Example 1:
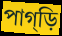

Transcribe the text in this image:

পাগ্ড়ি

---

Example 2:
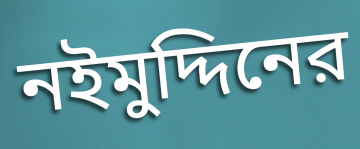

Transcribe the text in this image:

নইমুদ্দিনের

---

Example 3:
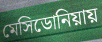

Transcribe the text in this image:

মেসিডোনিয়ায়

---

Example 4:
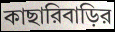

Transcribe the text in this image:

কাছারিবাড়ির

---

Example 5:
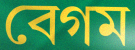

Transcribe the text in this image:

বেগম